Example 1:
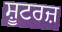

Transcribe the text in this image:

ਸ਼ੂਟਰਜ਼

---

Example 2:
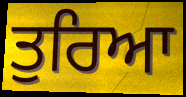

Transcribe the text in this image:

ਤੁਰਿਆ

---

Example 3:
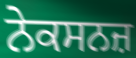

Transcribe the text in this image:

ਨੇਕਸਨਜ਼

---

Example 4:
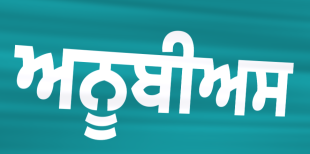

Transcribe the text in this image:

ਅਨੂਬੀਅਸ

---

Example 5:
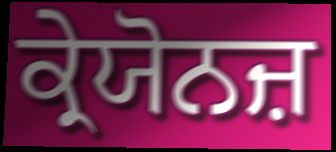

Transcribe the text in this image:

ਕ੍ਰੇਯੋਨਜ਼